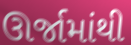
ઊર્જામાંથી